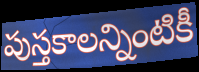
పుస్తకాలన్నింటికీ